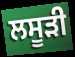
ਲਸੂੜੀ